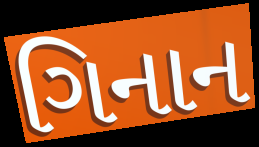
ગિનાન